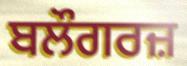
ਬਲੌਗਰਜ਼